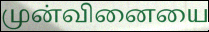
முன்வினையை